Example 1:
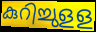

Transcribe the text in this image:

കുറിച്ചുളള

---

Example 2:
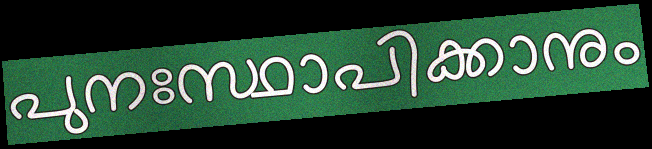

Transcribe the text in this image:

പുനഃസ്ഥാപിക്കാനും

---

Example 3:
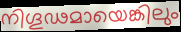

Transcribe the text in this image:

നിഗൂഢമായെങ്കിലും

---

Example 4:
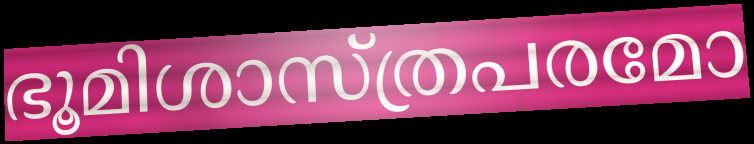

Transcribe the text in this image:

ഭൂമിശാസ്ത്രപരമോ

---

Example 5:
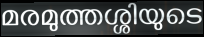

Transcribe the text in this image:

മരമുത്തശ്ശിയുടെ